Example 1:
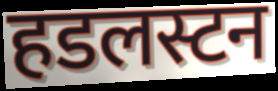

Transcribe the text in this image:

हडलस्टन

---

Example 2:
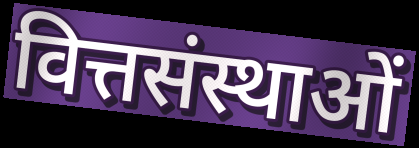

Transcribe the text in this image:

वित्तसंस्थाओं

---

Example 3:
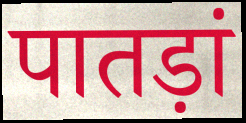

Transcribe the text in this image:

पातड़ां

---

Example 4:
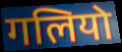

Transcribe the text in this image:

गलियो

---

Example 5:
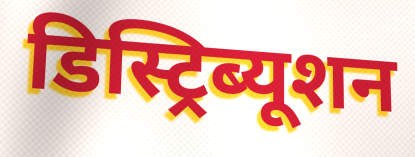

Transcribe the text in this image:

डिस्ट्रिब्यूशन